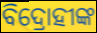
ବିଦ୍ରୋହୀଙ୍କ